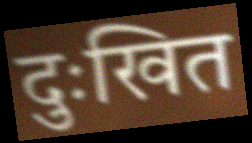
दुःखित